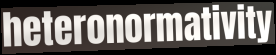
heteronormativity